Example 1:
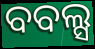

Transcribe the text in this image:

ବବଲ୍ସ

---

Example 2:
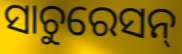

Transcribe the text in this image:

ସାଚୁରେସନ୍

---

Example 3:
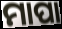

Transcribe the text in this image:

ମାପା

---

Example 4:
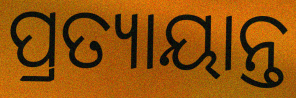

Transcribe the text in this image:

ପ୍ରତ୍ୟାୟାନ୍ତ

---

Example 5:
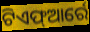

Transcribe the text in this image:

ଟିଏଫ୍ଆର୍ରେ